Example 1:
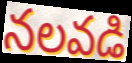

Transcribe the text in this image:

నలవడి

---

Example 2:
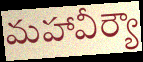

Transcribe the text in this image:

మహావీర్యౌ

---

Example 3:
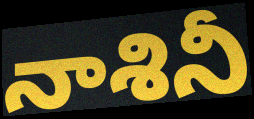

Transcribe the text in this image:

నాశినీ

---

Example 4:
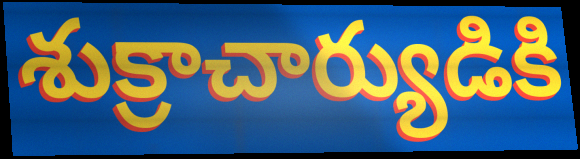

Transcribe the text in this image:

శుక్రాచార్యుడికి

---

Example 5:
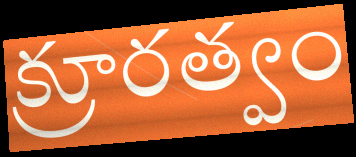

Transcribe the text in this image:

క్రూరత్వం